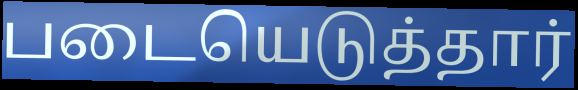
படையெடுத்தார்